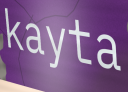
kayta